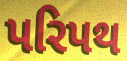
પરિપથ